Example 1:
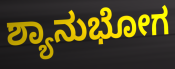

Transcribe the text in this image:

ಶ್ಯಾನುಭೋಗ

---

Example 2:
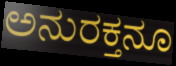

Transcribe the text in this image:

ಅನುರಕ್ತನೂ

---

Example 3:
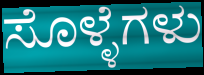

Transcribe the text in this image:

ಸೊಳ್ಳೆಗಳು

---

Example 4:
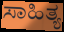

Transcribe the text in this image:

ಸಾಹಿತ್ಯ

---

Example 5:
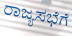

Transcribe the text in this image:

ರಾಜ್ಯಸಭೆಗೆ